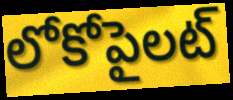
లోకోపైలట్